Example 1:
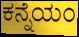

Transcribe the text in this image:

ಕನ್ನೆಯಂ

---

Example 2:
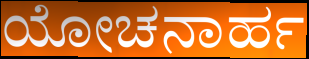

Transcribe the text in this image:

ಯೋಚನಾರ್ಹ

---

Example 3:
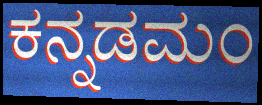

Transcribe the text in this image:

ಕನ್ನಡಮಂ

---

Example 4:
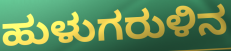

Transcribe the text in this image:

ಹುಳುಗರುಳಿನ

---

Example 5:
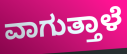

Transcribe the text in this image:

ವಾಗುತ್ತಾಳೆ